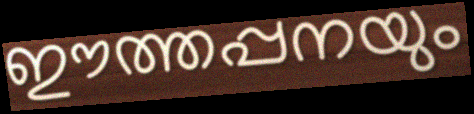
ഈത്തപ്പനയും